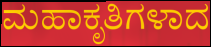
ಮಹಾಕೃತಿಗಳಾದ